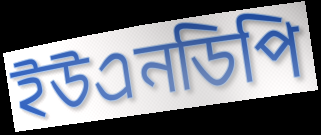
ইউএনডিপি